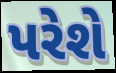
પરેશે